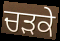
ਚੜਕੇ